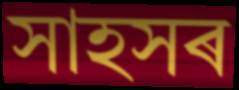
সাহসৰ